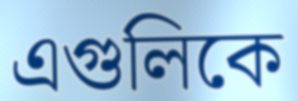
এগুলিকে